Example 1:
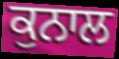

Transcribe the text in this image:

ਕੁਨਾਲ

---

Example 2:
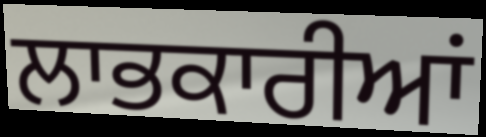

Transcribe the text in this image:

ਲਾਭਕਾਰੀਆਂ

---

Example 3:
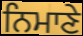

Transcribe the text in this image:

ਨਿਮਾਣੇ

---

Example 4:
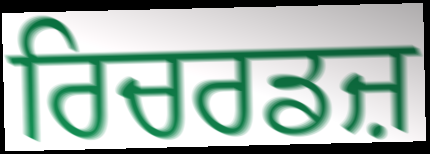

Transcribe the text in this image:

ਰਿਚਰਡਜ਼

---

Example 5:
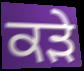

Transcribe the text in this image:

ਕੜੇ